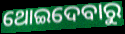
ଥୋଇଦେବାରୁ